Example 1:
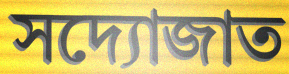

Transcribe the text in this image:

সদ্যোজাত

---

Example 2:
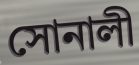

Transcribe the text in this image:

সোনালী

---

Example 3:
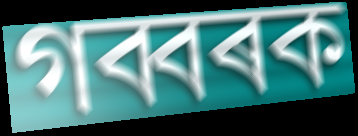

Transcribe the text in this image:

গব্বৰক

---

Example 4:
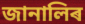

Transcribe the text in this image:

জানালিৰ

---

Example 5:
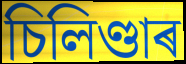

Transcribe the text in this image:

চিলিণ্ডাৰ